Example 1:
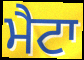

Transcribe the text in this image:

ਮੈਟਾ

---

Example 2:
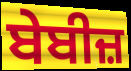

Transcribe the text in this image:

ਬੇਬੀਜ਼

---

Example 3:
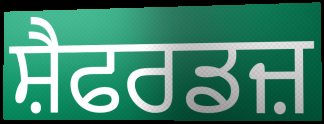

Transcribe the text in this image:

ਸ਼ੈਫਰਡਜ਼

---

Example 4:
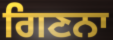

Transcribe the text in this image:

ਗਿਣਨਾ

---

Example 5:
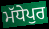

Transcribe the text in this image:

ਮੱਧੇਪੁਰ